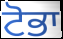
ਟੋਭਾ